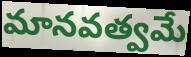
మానవత్వమే